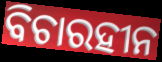
ବିଚାରହୀନ